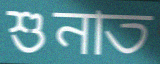
শুনাত